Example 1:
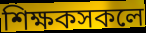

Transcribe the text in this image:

শিক্ষকসকলে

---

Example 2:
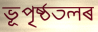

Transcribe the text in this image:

ভূপৃষ্ঠতলৰ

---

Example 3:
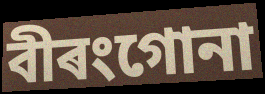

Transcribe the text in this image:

বীৰংগোনা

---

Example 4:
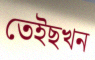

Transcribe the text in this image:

তেইছখন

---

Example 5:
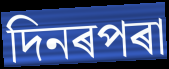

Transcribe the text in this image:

দিনৰপৰা